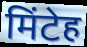
मिंटेह